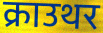
क्राउथर